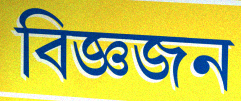
বিজ্ঞজন